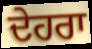
ਦੇਹਰਾ